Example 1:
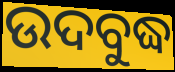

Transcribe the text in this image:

ଉଦବୁଦ୍ଧ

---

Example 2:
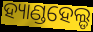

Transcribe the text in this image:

ହ୍ୟାଣ୍ଡହେଲ୍ଡ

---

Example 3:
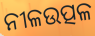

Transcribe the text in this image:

ନୀଳଉତ୍ପଳ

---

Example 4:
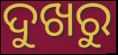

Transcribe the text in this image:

ଦୁଖରୁ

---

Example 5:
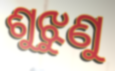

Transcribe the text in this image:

ଶୁଝୁଣୁ